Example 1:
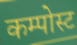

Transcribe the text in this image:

कम्पोस्ट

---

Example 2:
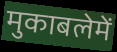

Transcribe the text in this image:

मुकाबलेमें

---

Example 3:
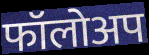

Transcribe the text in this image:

फॉलोअप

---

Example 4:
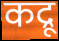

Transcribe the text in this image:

कद्रू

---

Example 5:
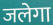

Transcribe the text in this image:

जलेगा